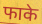
फाके